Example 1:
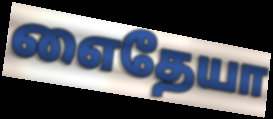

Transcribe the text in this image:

எைதேயா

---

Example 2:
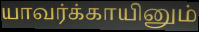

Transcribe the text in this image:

யாவர்க்காயினும்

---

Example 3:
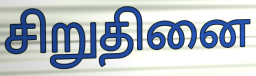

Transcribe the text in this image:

சிறுதினை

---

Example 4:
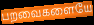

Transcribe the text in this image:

பறவைகளையே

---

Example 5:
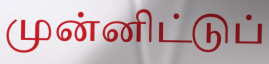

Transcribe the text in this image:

முன்னிட்டுப்